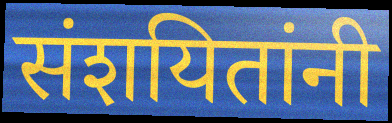
संशयितांनी